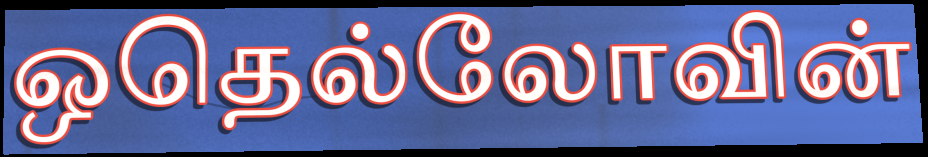
ஒதெல்லோவின்